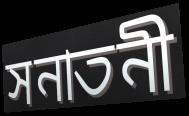
সনাতনী